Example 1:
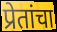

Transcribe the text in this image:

प्रेतांचा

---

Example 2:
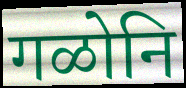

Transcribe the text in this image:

गळोनि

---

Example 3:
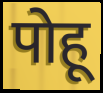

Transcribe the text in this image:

पोहू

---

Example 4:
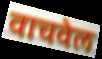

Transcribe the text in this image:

वाचवेल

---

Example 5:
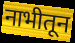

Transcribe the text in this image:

नाभीतून